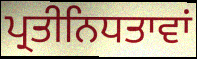
ਪ੍ਰਤੀਨਿਧਤਾਵਾਂ